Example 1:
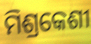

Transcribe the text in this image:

ମିଶ୍ରକେଶୀ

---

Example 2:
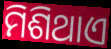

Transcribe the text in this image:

ମିଶିଥାଏ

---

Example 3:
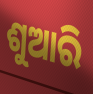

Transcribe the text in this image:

ଶୁଆରି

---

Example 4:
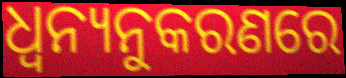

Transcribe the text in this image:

ଧ୍ଵନ୍ୟନୁକରଣରେ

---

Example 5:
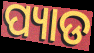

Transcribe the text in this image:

ପ୍ୟାଡ